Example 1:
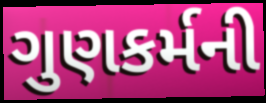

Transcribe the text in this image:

ગુણકર્મની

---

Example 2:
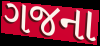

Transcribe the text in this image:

ગજના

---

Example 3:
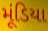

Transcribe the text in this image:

મૂંડિયા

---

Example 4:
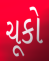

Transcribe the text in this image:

ચૂકો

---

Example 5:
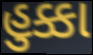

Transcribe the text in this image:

હુક્કા